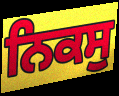
ਨਿਕਸੁ